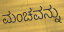
ಮಂಚವನ್ನು